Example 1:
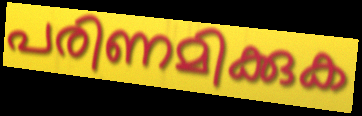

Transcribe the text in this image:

പരിണമിക്കുക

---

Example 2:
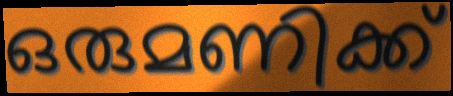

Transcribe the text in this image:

ഒരുമണിക്ക്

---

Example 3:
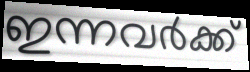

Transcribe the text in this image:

ഇന്നവർക്ക്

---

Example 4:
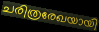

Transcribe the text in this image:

ചരിത്രരേഖയായി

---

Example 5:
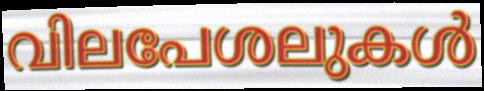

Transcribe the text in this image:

വിലപേശലുകൾ